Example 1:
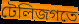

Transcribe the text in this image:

টেলিজগতে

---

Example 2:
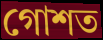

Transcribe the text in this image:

গোশত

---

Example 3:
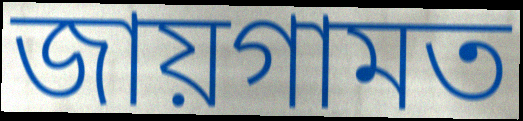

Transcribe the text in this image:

জায়গামত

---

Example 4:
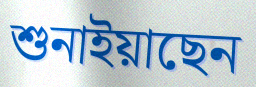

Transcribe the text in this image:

শুনাইয়াছেন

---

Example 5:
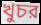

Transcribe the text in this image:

খুচর